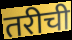
तरीची